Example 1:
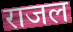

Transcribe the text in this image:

राजल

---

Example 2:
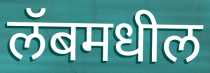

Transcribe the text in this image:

लॅबमधील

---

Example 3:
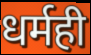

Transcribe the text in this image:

धर्मही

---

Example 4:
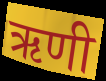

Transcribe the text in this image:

ऋणी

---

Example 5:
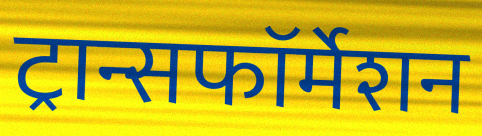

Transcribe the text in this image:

ट्रान्सफॉर्मेशन